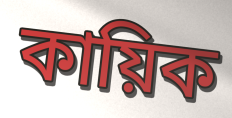
কায়িক